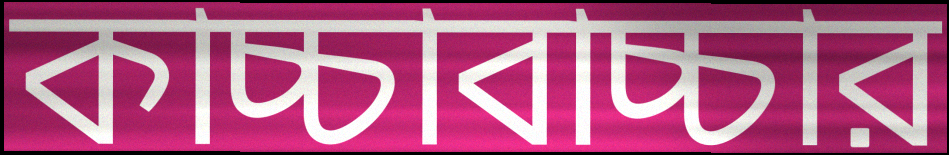
কাচ্চাবাচ্চার